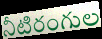
నీటిరంగుల